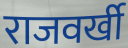
राजवर्खी